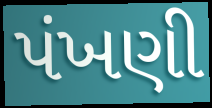
પંખણી